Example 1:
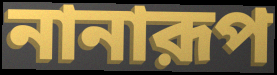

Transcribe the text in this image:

নানারূপ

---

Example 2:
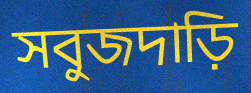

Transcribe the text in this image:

সবুজদাড়ি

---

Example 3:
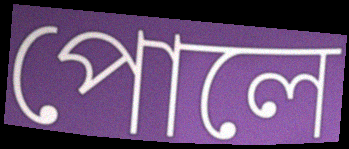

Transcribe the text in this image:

পোলে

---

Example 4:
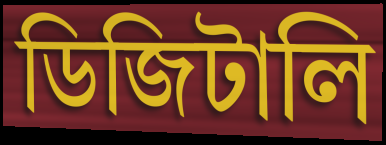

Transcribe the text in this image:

ডিজিটালি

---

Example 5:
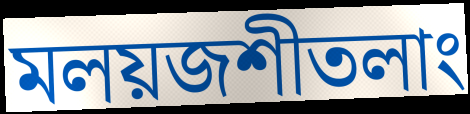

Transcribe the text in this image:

মলয়জশীতলাং